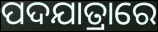
ପଦଯାତ୍ରାରେ